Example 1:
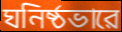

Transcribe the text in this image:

ঘনিষ্ঠভাৱে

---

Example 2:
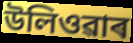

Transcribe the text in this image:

উলিওৱাৰ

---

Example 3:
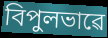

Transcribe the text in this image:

বিপুলভাৱে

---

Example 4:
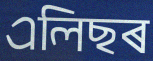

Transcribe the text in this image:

এলিছৰ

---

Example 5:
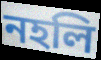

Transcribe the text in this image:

নহলি